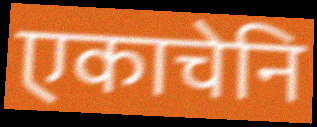
एकाचेनि